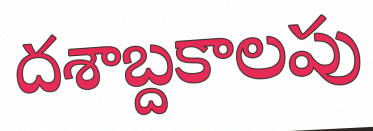
దశాబ్దకాలపు